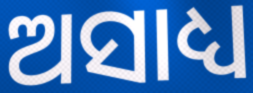
ଅସାଧ୍ୟ